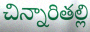
చిన్నారితల్లి